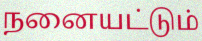
நனையட்டும்